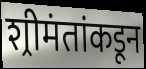
श्रीमंतांकडून